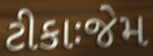
ટીકાઃજેમ